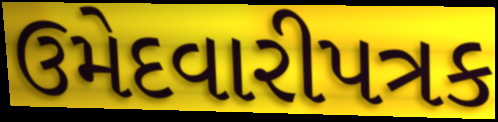
ઉમેદવારીપત્રક